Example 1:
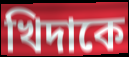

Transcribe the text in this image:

খিদাকে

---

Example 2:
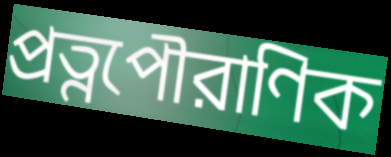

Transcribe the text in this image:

প্রত্নপৌরাণিক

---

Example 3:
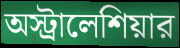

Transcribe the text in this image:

অস্ট্রালেশিয়ার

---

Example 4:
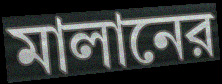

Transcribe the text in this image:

মালানের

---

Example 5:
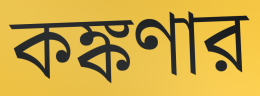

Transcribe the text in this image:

কঙ্কণার